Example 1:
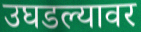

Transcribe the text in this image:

उघडल्यावर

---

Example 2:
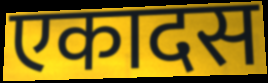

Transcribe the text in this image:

एकादस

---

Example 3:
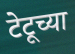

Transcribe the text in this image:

टेटूच्या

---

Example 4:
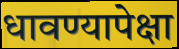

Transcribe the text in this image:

धावण्यापेक्षा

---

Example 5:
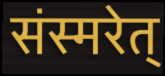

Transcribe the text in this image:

संस्मरेत्